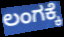
ಲಂಗಕ್ಕೆ